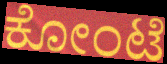
ಕೋಂಟೆ